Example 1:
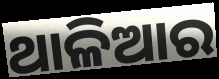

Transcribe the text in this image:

ଥାଳିଆର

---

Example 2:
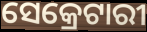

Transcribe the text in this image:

ସେକ୍ରେଟାରୀ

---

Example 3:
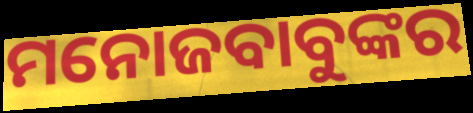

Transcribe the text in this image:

ମନୋଜବାବୁଙ୍କର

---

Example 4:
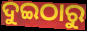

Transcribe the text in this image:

ଦୁଇଠାରୁ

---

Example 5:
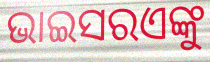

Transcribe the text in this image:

ଭାଇସରଏଙ୍କୁ